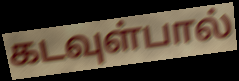
கடவுள்பால்